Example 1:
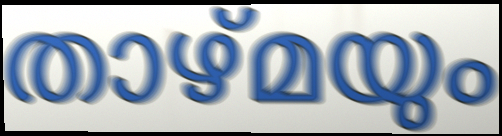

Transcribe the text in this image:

താഴ്മയും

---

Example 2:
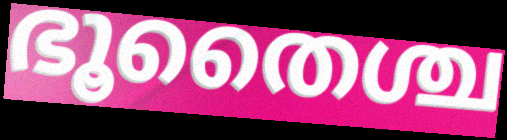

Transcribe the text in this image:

ഭൂതൈശ്ച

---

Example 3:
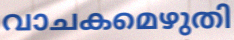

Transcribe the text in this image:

വാചകമെഴുതി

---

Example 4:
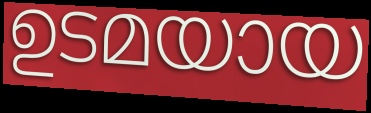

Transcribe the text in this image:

ഉടമയായ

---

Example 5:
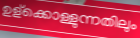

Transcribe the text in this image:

ഉള്ക്കൊള്ളുന്നതിലും